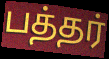
பத்தர்